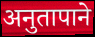
अनुतापाने